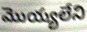
మొయ్యలేని